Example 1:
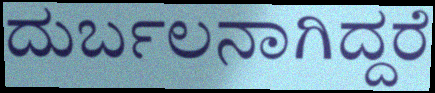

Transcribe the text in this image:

ದುರ್ಬಲನಾಗಿದ್ದರೆ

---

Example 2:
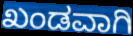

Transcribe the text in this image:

ಖಂಡವಾಗಿ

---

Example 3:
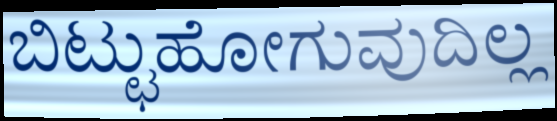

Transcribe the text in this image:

ಬಿಟ್ಟುಹೋಗುವುದಿಲ್ಲ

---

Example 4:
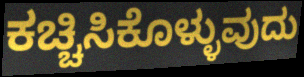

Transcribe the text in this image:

ಕಚ್ಚಿಸಿಕೊಳ್ಳುವುದು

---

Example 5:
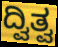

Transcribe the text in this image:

ದ್ವಿತ್ವ